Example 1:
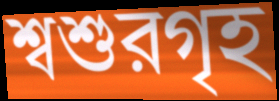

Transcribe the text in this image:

শ্বশুরগৃহ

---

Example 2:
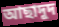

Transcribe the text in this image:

আছাদুদ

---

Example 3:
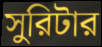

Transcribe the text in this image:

সুরিটার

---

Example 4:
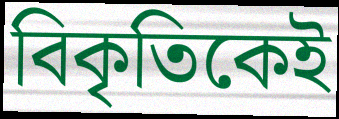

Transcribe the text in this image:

বিকৃতিকেই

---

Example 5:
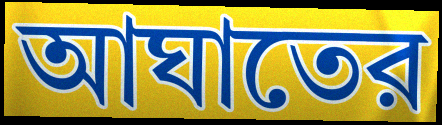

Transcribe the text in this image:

আঘাতের